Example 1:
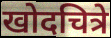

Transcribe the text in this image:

खोदचित्रे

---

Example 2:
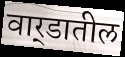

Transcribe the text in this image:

वार्डातील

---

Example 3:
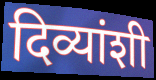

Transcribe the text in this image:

दिव्यांशी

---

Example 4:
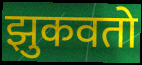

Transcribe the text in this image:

झुकवतो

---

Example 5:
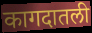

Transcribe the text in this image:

कागदातली